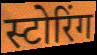
स्टोरिंग